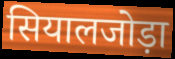
सियालजोड़ा